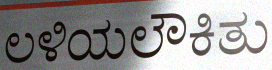
ಲಳಿಯಲೌಕಿತು